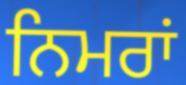
ਨਿਮਰਾਂ